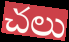
చలు